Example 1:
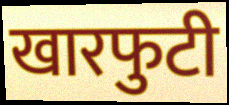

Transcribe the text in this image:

खारफुटी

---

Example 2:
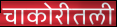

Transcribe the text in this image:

चाकोरीतली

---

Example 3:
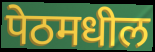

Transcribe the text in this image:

पेठमधील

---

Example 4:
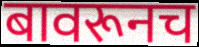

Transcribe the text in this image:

बावरूनच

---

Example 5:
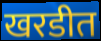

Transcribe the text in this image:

खरडीत